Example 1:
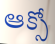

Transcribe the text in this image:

ఆక్సో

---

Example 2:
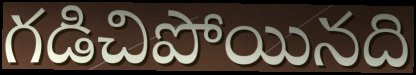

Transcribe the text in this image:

గడిచిపోయినది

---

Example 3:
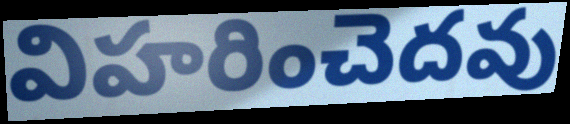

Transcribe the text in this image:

విహరించెదవు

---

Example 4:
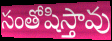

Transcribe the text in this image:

సంతోషిస్తావు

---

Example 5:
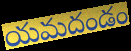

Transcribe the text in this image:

యమదండం